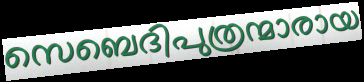
സെബെദിപുത്രന്മാരായ